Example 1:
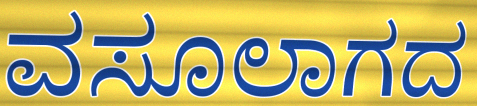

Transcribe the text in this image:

ವಸೂಲಾಗದ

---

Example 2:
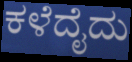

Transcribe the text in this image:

ಕಳೆದೈದು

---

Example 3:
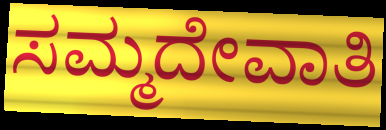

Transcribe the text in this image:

ಸಮ್ಮದೇವಾತಿ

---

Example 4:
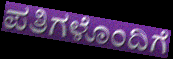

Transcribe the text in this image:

ಪತಿಗಳೊಂದಿಗೆ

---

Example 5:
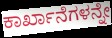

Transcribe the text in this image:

ಕಾರ್ಖಾನೆಗಳನ್ನೇ